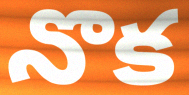
నొక